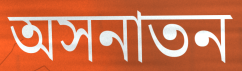
অসনাতন